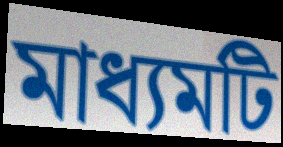
মাধ্যমটি